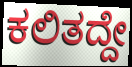
ಕಲಿತದ್ದೇ